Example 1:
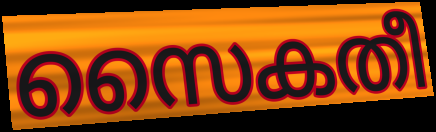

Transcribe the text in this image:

സൈകതീ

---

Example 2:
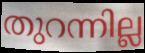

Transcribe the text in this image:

തുറന്നില്ല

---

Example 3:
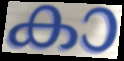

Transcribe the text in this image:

കാ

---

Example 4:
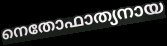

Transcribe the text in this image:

നെതോഫാത്യനായ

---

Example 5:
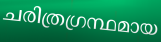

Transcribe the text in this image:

ചരിത്രഗ്രന്ഥമായ